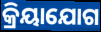
କ୍ରିୟାଯୋଗ